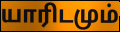
யாரிடமும்